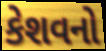
કેશવનો